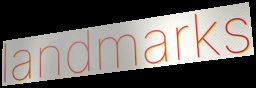
landmarks